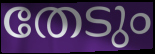
തേടും